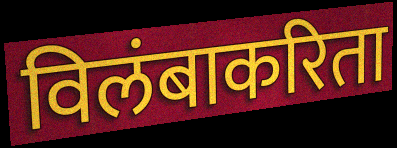
विलंबाकरिता